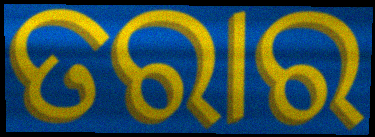
ତରାର